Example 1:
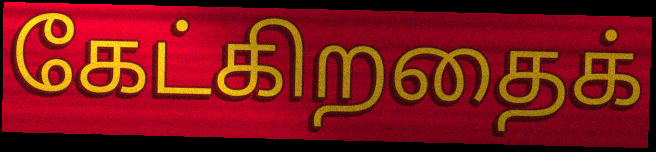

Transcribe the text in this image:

கேட்கிறதைக்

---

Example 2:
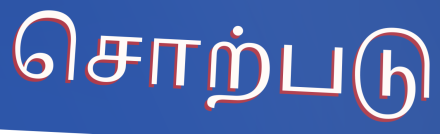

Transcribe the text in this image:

சொற்படு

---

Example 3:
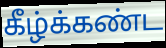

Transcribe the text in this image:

கீழ்க்கண்ட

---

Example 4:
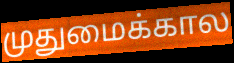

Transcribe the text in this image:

முதுமைக்கால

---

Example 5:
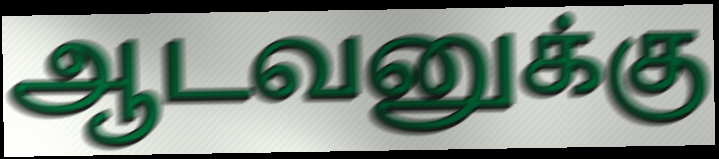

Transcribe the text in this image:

ஆடவனுக்கு